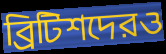
ব্রিটিশদেরও